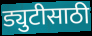
ड्युटीसाठी